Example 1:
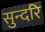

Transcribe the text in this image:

सुन्दरि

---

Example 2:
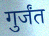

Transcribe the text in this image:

गुर्जंत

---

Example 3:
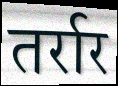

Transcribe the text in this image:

तर्रार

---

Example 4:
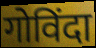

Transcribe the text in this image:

गोविंदा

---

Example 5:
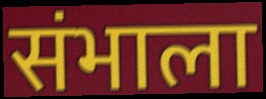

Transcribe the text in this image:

संभाला